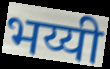
भय्यी